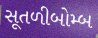
સૂતળીબોમ્બ